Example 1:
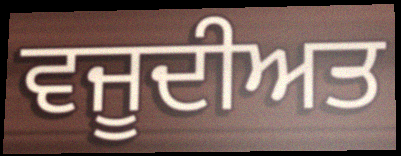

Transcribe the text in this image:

ਵਜੂਦੀਅਤ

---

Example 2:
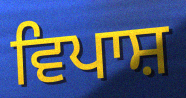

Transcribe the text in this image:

ਵਿਪਾਸ਼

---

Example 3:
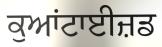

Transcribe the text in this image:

ਕੁਆਂਟਾਈਜ਼ਡ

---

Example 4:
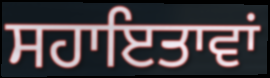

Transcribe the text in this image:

ਸਹਾਇਤਾਵਾਂ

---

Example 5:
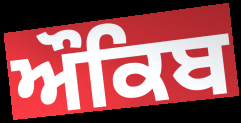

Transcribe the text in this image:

ਔਕਿਬ